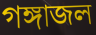
গঙ্গাজল